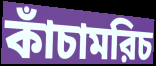
কাঁচামরিচ